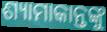
ଶ୍ୟାମାକାନ୍ତଙ୍କୁ